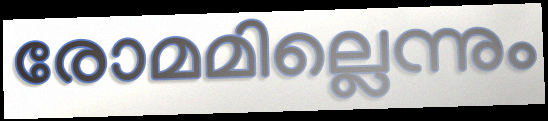
രോമമില്ലെന്നും